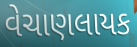
વેચાણલાયક